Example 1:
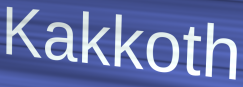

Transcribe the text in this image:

Kakkoth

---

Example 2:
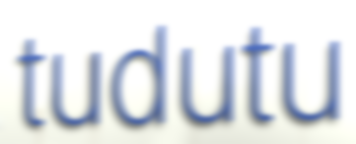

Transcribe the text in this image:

tudutu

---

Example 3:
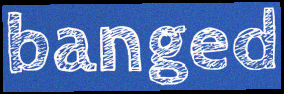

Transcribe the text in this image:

banged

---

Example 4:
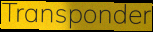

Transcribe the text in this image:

Transponder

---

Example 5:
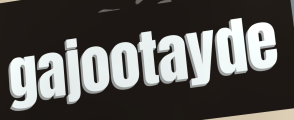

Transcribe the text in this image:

gajootayde